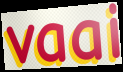
vaai